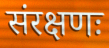
संरक्षणः